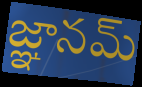
జ్ఞానమ్